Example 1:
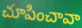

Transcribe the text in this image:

చూపించావా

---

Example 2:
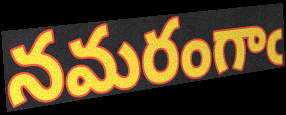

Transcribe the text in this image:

నమరంగాఁ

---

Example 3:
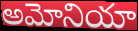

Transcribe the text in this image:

అమోనియా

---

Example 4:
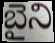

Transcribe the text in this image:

బైని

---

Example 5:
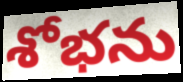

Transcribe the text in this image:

శోభను